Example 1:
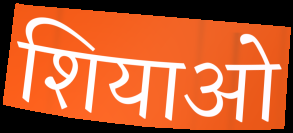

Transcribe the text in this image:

शियाओ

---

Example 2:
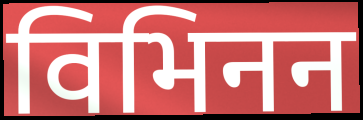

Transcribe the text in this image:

विभिनन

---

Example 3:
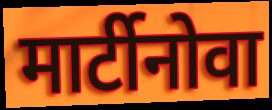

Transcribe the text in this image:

मार्टीनोवा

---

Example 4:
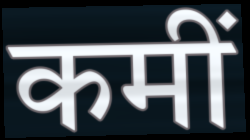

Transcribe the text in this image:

कमीं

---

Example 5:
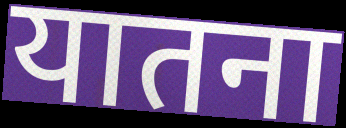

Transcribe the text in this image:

यातना